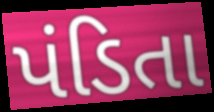
પંડિતા